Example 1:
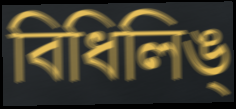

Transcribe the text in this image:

বিধিলিঙ্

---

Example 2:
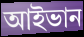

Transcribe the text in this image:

আইভান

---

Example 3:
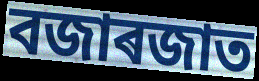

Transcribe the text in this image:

বজাৰজাত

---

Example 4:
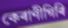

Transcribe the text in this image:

কেৰাণীগিৰি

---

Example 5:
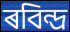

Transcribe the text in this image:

ৰবিন্দ্ৰ